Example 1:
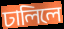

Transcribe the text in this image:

ঢালিলে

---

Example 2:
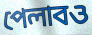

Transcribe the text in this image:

পেলাবও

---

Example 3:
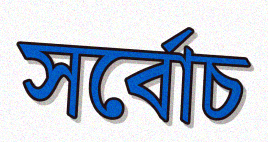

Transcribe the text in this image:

সৰ্বোচ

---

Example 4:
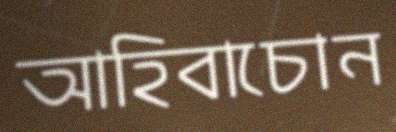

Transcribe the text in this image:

আহিবাচোন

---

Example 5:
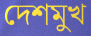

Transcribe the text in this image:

দেশমুখ